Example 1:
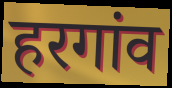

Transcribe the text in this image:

हरगांव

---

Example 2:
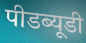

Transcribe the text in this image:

पीडब्यूडी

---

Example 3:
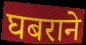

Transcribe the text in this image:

घबराने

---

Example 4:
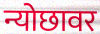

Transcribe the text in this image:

न्योछावर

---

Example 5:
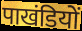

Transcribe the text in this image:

पाखंडियों